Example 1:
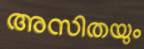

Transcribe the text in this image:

അസിതയും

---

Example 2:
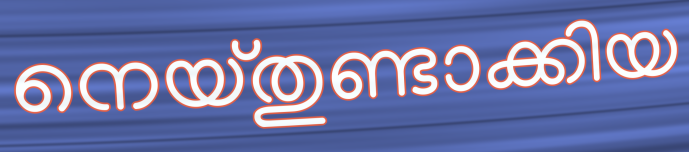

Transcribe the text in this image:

നെയ്തുണ്ടാക്കിയ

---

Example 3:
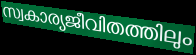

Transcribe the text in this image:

സ്വകാര്യജീവിതത്തിലും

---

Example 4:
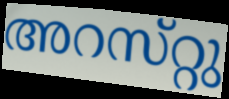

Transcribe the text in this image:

അറസ്‌റ്റു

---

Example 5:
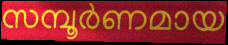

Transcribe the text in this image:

സമ്പൂർണമായ